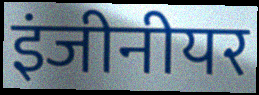
इंजीनीयर